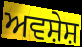
ਅਵਸ਼ੇਸ਼